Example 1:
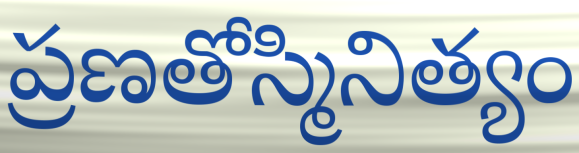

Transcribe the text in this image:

ప్రణతోస్మినిత్యం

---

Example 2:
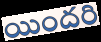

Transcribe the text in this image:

యిందరి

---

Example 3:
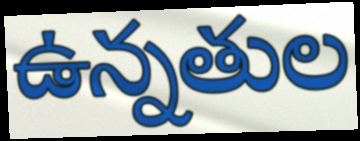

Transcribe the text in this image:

ఉన్నతుల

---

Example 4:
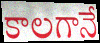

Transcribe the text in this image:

కాలగానే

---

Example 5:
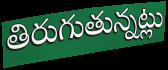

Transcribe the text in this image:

తిరుగుతున్నట్లు